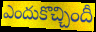
ఎందుకొచ్చిందీ